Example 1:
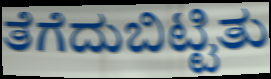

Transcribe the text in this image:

ತೆಗೆದುಬಿಟ್ಟಿತು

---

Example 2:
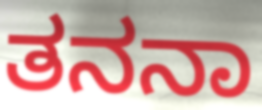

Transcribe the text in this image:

ತನನಾ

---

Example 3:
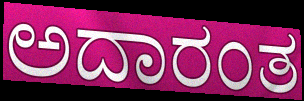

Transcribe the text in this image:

ಅದಾರಂತ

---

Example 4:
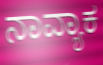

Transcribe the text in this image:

ನಾವ್ಯಾಕ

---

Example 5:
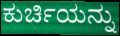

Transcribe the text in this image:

ಕುರ್ಚಿಯನ್ನು